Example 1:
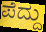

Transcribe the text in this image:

ಪೆದ್ದು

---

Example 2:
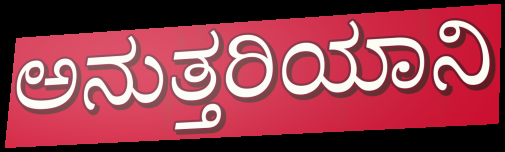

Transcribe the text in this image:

ಅನುತ್ತರಿಯಾನಿ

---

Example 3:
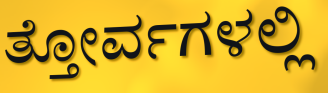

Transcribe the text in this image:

ತ್ತೋರ್ವಗಳಲ್ಲಿ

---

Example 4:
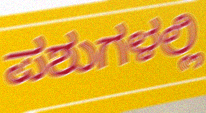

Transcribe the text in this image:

ಪಶುಗಳಲ್ಲಿ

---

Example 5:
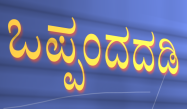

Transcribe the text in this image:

ಒಪ್ಪಂದದಡಿ